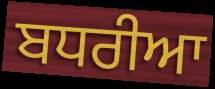
ਬਧਰੀਆ